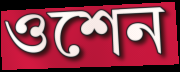
ওশেন